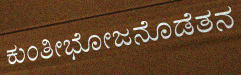
ಕುಂತೀಭೋಜನೊಡೆತನ